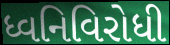
ધ્વનિવિરોધી